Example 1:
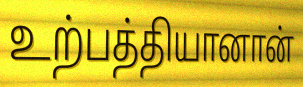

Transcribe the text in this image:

உற்பத்தியானான்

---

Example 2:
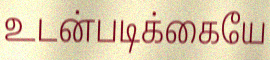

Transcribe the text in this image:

உடன்படிக்கையே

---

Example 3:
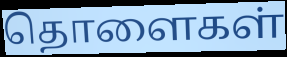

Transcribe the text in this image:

தொளைகள்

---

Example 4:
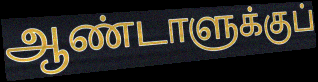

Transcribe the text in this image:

ஆண்டாளுக்குப்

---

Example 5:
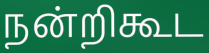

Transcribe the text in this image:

நன்றிகூட